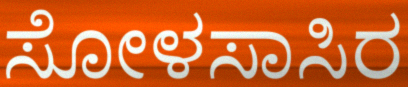
ಸೋಳಸಾಸಿರ